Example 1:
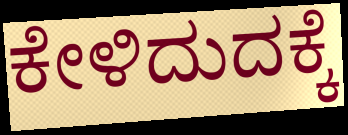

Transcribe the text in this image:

ಕೇಳಿದುದಕ್ಕೆ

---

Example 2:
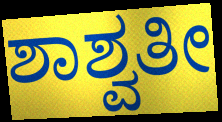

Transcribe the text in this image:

ಶಾಶ್ವತೀ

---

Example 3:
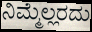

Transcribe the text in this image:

ನಿಮ್ಮೆಲ್ಲರದು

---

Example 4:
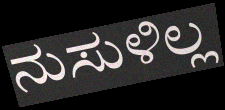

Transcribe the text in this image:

ನುಸುಳಿಲ್ಲ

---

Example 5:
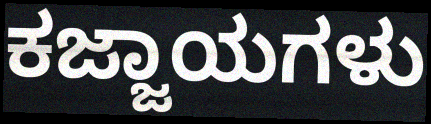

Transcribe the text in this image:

ಕಜ್ಜಾಯಗಳು